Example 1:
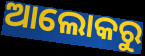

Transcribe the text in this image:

ଆଲୋକରୁ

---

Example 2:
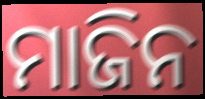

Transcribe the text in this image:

ମାଜିନ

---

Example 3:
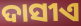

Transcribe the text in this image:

ଦାସୀଏ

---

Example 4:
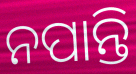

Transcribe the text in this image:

ନପାନ୍ତି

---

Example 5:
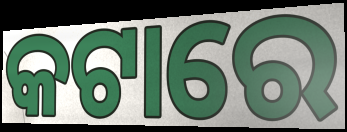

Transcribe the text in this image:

କଟାରେ